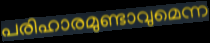
പരിഹാരമുണ്ടാവുമെന്ന